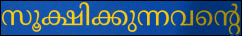
സൂക്ഷിക്കുന്നവന്റെ